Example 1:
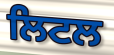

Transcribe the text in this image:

ਲਿਟਲ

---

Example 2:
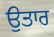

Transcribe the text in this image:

ਉਤਾਰ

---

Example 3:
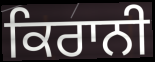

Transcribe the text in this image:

ਕਿਰਾਨੀ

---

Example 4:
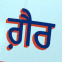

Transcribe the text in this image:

ਗ਼ੈਰ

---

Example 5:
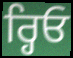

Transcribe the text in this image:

ਰ੍ਹਿਓ